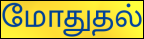
மோதுதல்